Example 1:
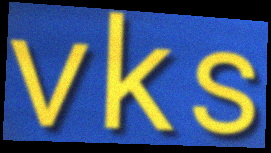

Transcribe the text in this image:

vks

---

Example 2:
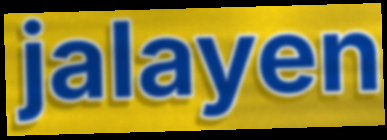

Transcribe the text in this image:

jalayen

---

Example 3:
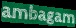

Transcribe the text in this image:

ambagam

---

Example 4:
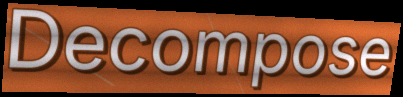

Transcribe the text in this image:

Decompose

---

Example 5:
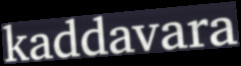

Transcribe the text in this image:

kaddavara